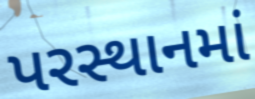
પરસ્થાનમાં